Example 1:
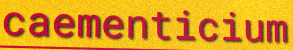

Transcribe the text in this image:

caementicium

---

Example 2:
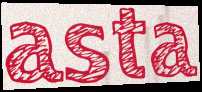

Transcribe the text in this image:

asta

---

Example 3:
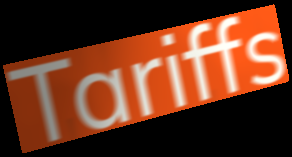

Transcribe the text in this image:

Tariffs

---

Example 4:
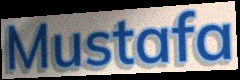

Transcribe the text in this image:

Mustafa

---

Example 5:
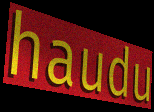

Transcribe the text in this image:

haudu